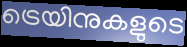
ട്രെയിനുകളുടെ